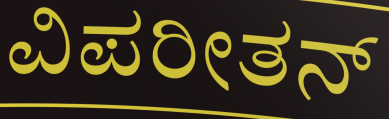
ವಿಪರೀತನ್